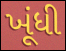
ખૂંધી